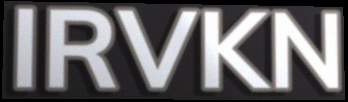
IRVKN